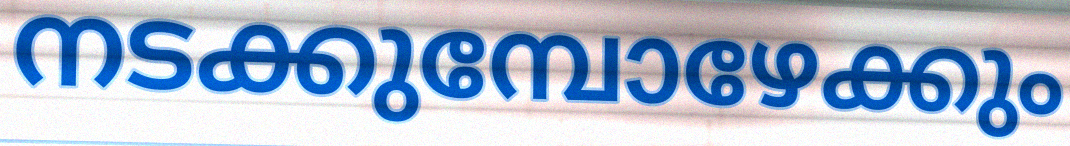
നടക്കുമ്പോഴേക്കും